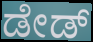
ಡೇಡ್